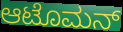
ಆಟೊಮನ್